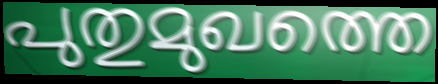
പുതുമുഖത്തെ